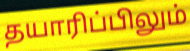
தயாரிப்பிலும்